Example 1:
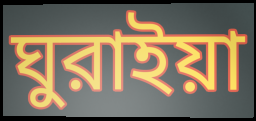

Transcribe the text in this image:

ঘুরাইয়া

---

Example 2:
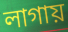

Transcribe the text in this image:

লাগায়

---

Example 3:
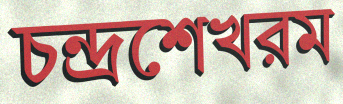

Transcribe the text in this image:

চন্দ্রশেখরম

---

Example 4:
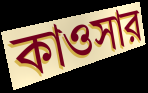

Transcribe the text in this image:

কাওসার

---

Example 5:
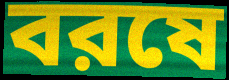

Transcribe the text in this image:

বরষে